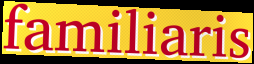
familiaris